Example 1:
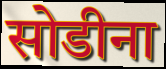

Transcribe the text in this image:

सोडीना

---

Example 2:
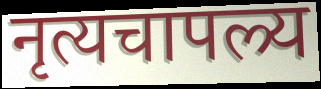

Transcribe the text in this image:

नृत्यचापल्य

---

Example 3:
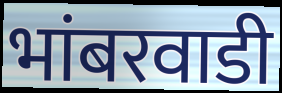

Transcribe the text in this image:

भांबरवाडी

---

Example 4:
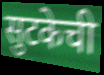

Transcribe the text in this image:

सुटकेची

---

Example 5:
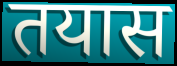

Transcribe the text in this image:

तयास